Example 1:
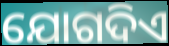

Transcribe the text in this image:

ଯୋଗଦିଏ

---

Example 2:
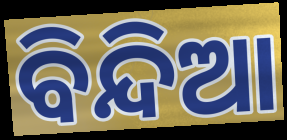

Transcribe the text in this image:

ବିନ୍ଦିଆ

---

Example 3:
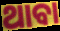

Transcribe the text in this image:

ଥାବା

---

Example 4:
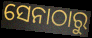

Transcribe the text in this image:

ସେନାଠାରୁ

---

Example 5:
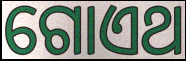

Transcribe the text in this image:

ଗୋଏଥ